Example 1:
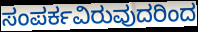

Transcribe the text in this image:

ಸಂಪರ್ಕವಿರುವುದರಿಂದ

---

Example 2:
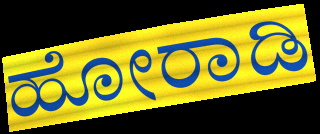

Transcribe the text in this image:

ಹೋರಾಡಿ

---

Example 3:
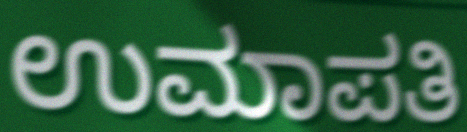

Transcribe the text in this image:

ಉಮಾಪತಿ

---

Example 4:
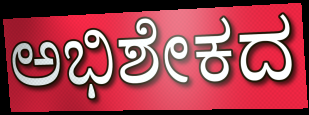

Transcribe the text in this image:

ಅಭಿಶೇಕದ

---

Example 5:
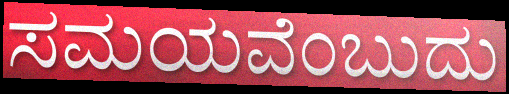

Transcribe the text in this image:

ಸಮಯವೆಂಬುದು